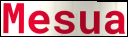
Mesua